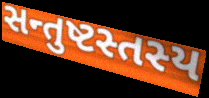
સન્તુષ્ટસ્તસ્ય